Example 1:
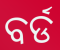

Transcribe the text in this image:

ବର୍ଡ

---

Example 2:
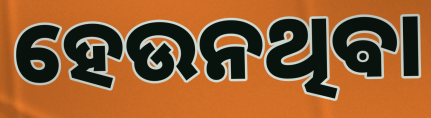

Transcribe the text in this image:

ହେଉନଥିଵା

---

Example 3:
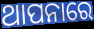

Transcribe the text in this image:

ଥାପନାରେ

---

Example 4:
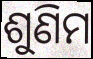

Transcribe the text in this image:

ଶୁଣିମ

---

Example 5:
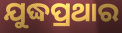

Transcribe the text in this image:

ଯୁଦ୍ଧପ୍ରଥାର